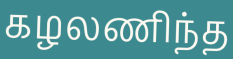
கழலணிந்த